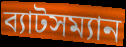
ব্যাটসম্যান